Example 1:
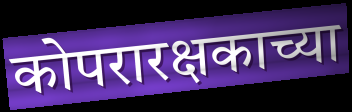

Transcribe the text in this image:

कोपरारक्षकाच्या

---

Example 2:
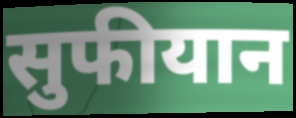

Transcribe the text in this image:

सुफीयान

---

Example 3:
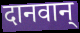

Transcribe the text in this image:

दानवान्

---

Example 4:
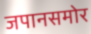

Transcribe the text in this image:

जपानसमोर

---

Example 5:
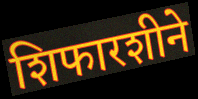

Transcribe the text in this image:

शिफारशीने